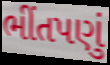
ભીંતપણું